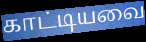
காட்டியவை